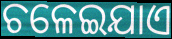
ଚଳେଇଯାଏ